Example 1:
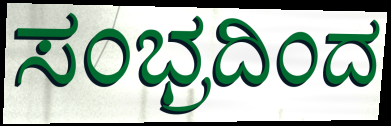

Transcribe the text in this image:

ಸಂಭ್ರದಿಂದ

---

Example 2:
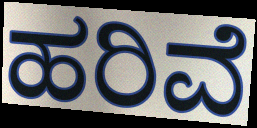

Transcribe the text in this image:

ಹರಿವೆ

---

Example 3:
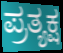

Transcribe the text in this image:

ಪ್ರತ್ಯಕ್ಷ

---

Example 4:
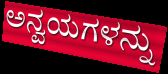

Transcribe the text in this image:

ಅನ್ವಯಗಳನ್ನು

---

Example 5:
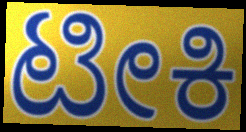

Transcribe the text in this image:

ಟೀಕಿ